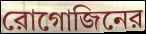
রোগোজিনের